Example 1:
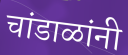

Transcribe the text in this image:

चांडाळांनी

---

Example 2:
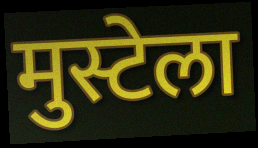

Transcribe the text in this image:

मुस्टेला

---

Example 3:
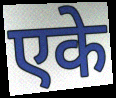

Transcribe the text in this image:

एके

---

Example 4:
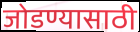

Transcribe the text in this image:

जोडण्यासाठी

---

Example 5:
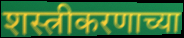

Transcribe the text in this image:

शस्त्रीकरणाच्या